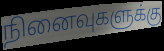
நினைவுகளுக்கு